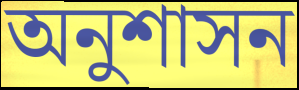
অনুশাসন